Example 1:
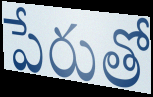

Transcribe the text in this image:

పేరుతో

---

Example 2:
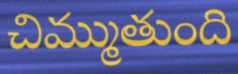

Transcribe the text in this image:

చిమ్ముతుంది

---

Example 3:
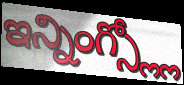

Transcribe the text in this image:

ఇన్నింగ్స్ల్లో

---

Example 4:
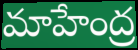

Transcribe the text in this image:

మాహేంద్ర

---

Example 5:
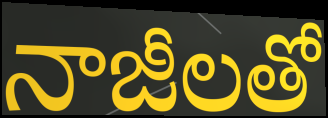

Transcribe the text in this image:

నాజీలతో